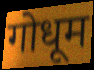
गोधूम